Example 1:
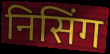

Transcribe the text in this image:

निसिंग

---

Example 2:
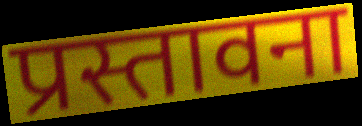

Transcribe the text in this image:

प्रस्‍तावना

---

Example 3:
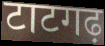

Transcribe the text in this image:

टाटगढ़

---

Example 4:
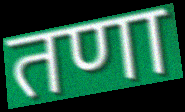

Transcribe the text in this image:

तणा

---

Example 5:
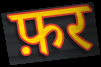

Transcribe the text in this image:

फ़र